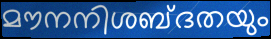
മൗനനിശബ്ദതയും